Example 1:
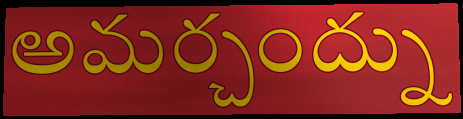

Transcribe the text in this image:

అమర్చంద్ను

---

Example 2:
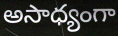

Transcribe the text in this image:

అసాధ్యంగా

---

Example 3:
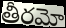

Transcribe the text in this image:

తీరమో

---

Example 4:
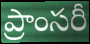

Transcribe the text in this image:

ప్రాంసరీ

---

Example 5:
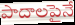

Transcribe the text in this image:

పాదాలపైనే